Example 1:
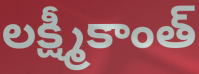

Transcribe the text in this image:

లక్ష్మీకాంత్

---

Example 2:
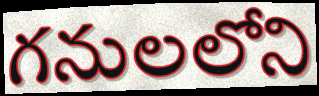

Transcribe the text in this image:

గనులలోని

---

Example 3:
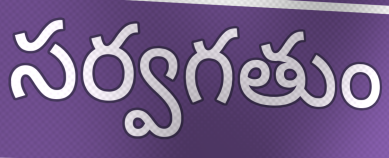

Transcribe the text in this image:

సర్వగతుం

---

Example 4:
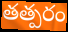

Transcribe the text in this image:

తత్పరం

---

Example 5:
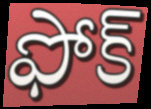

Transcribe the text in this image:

ఫోక్